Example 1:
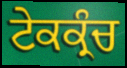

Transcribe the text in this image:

ਟੇਕਕ੍ਰੰਚ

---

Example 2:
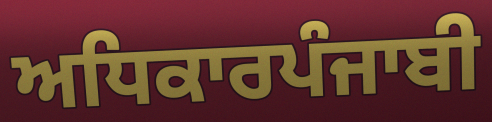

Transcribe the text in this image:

ਅਧਿਕਾਰਪੰਜਾਬੀ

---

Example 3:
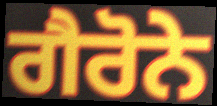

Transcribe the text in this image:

ਗੈਰੋਨੇ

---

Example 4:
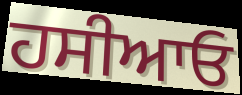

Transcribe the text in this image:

ਹਸੀਆਓ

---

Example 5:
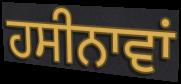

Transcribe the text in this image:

ਹਸੀਨਾਵਾਂ